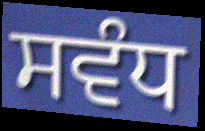
ਸਵੰਧ